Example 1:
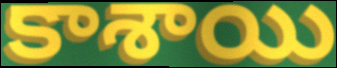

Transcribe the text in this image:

కాశాయి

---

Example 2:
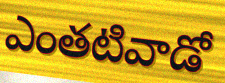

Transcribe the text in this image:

ఎంతటివాడో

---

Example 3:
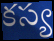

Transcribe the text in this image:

కస్య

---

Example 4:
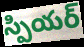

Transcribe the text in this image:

స్పియర్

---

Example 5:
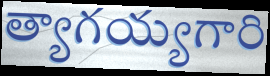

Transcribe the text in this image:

త్యాగయ్యగారి